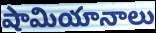
షామియానాలు